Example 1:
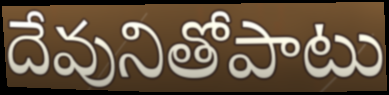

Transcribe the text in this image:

దేవునితోపాటు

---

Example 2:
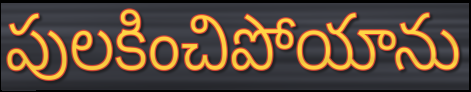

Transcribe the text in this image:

పులకించిపోయాను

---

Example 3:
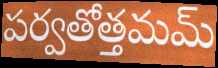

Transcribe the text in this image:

పర్వతోత్తమమ్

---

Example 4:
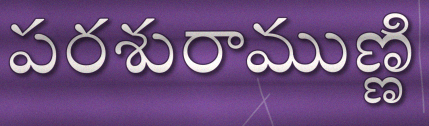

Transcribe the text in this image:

పరశురాముణ్ణి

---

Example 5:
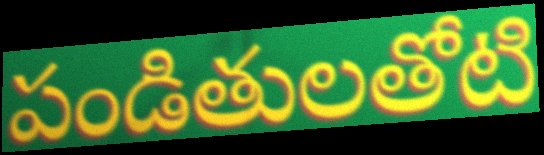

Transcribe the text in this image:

పండితులతోటి